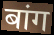
बांग